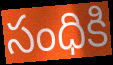
సంధికి